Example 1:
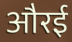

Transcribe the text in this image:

औरई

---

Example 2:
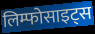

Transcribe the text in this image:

लिम्फोसाइट्स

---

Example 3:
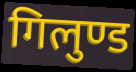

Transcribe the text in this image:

गिलुण्ड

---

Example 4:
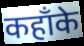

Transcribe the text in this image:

कहाँके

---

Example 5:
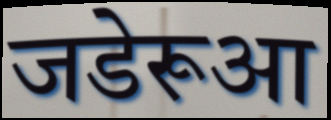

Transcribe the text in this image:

जडेरूआ